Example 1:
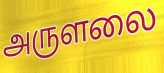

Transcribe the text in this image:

அருளலை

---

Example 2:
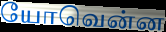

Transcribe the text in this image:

யோவென்ன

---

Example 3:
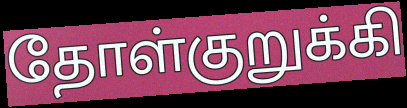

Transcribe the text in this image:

தோள்குறுக்கி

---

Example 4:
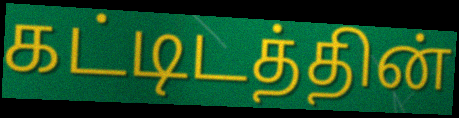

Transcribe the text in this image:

கட்டிடத்தின்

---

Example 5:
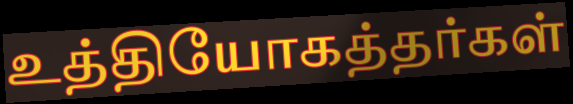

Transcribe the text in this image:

உத்தியோகத்தர்கள்